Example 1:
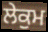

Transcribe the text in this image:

ਲੇਕੁਮ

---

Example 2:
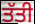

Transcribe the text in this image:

ਤੱਤੀ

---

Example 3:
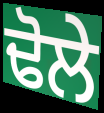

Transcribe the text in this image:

ਢੋਲੇ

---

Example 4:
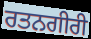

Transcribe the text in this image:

ਰਤਨਗੀਰੀ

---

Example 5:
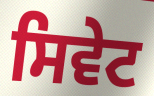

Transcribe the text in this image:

ਸਿਵੇਟ